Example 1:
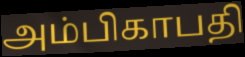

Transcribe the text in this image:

அம்பிகாபதி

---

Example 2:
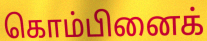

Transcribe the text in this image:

கொம்பினைக்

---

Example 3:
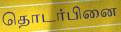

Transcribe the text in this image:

தொடர்பினை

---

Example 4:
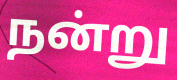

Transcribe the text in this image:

நன்று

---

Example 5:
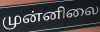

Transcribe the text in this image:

முன்னிலை